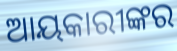
ଆୟକାରୀଙ୍କର